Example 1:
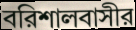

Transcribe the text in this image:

বরিশালবাসীর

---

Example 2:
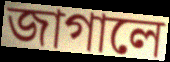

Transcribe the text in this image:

জাগালে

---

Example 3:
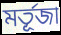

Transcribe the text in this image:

মর্তূজা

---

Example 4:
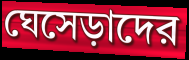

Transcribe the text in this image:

ঘেসেড়াদের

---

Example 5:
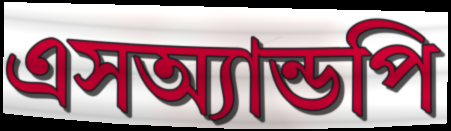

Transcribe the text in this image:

এসঅ্যান্ডপি